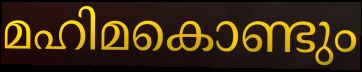
മഹിമകൊണ്ടും